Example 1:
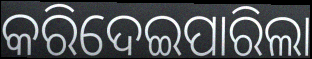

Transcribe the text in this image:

କରିଦେଇପାରିଲା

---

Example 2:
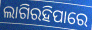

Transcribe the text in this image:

ଲାଗିରହିପାରେ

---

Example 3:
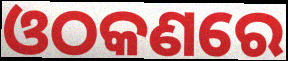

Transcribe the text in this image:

ଓଠକଣରେ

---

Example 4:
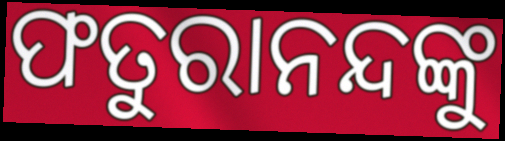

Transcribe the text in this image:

ଫତୁରାନନ୍ଦଙ୍କୁ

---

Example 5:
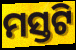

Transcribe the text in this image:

ମସ୍ତଟି